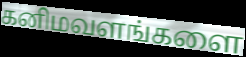
கனிமவளங்களை